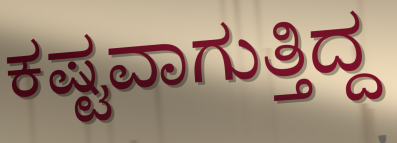
ಕಷ್ಟವಾಗುತ್ತಿದ್ದ